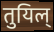
तुयिल्